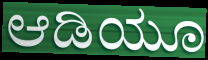
ಆಡಿಯೂ